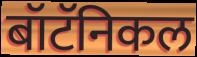
बॉटॅनिकल